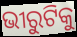
ଭୀରୁଟିକୁ